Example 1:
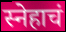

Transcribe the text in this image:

स्नेहाचं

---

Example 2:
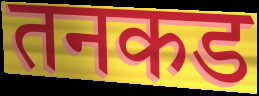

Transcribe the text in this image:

तनकड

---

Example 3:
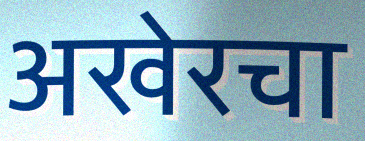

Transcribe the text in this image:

अखेरचा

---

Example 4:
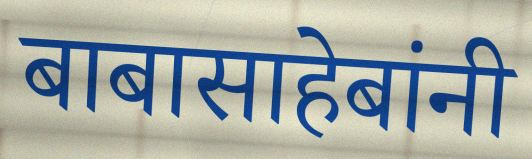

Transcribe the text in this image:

बाबासाहेबांनी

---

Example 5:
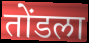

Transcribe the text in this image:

तोंडला